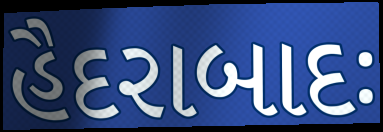
હૈદરાબાદઃ